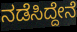
ನಡೆಸಿದ್ದೇನೆ